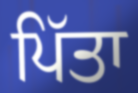
ਪਿੱਤਾ